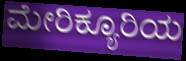
ಮೇರಿಕ್ಯೂರಿಯ